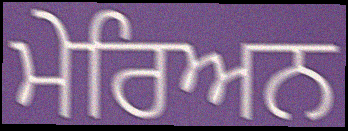
ਮੇਰਿਅਨ